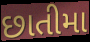
છાતીમા